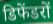
डिफेंडरों